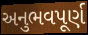
અનુભવપૂર્ણ